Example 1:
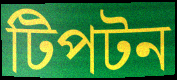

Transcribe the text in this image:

টিপটন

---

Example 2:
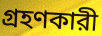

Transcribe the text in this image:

গ্রহণকারী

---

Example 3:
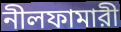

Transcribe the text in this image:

নীলফামারী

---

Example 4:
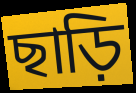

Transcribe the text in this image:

ছাড়ি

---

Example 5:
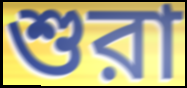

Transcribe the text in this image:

শুরা